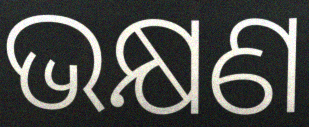
ଭକ୍ଷଣ